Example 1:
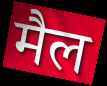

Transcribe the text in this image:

मैल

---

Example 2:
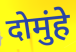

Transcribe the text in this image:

दोमुंहे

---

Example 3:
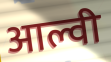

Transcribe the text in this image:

आल्वी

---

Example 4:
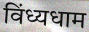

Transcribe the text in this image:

विंध्यधाम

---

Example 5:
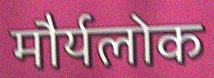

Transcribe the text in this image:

मौर्यलोक